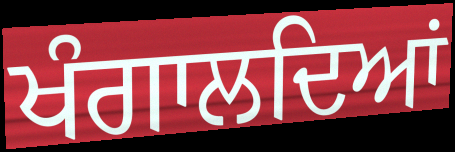
ਖੰਗਾਲਦਿਆਂ